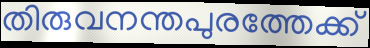
തിരുവനന്തപുരത്തേക്ക്